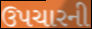
ઉપચારની